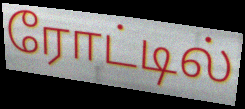
ரோட்டில்